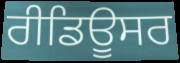
ਰੀਡਿਊਸਰ